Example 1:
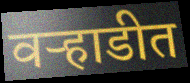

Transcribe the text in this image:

वऱ्हाडीत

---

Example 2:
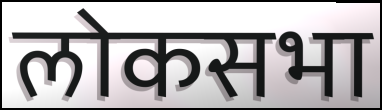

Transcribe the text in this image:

लोकसभा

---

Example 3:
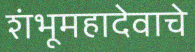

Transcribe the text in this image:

शंभूमहादेवाचे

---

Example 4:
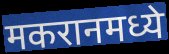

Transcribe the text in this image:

मकरानमध्ये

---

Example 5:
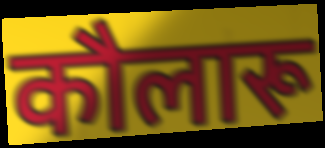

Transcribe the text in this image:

कौलारू